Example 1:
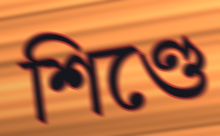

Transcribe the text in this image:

শিণ্ডে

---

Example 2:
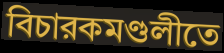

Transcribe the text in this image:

বিচারকমণ্ডলীতে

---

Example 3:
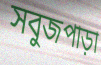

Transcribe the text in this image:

সবুজপাড়া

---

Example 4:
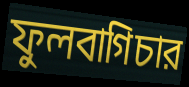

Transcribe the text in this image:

ফুলবাগিচার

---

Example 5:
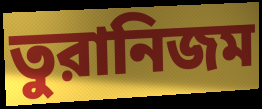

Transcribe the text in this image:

তুরানিজম